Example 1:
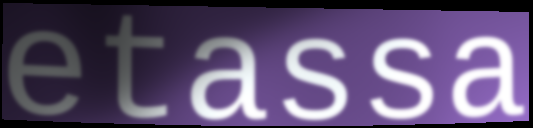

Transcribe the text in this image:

etassa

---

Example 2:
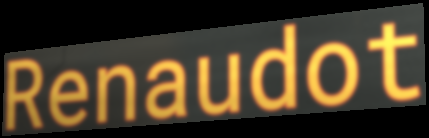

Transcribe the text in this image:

Renaudot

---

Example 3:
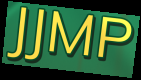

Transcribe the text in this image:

JJMP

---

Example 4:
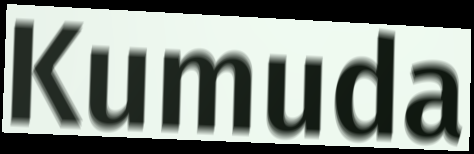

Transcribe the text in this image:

Kumuda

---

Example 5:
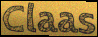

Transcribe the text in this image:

Claas